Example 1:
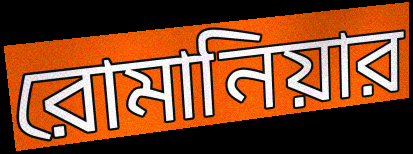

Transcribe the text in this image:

রোমানিয়ার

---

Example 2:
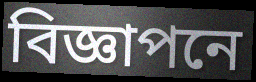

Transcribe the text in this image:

বিজ্ঞাপনে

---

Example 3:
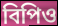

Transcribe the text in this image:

বিপিও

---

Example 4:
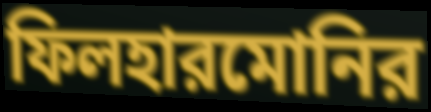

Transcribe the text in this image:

ফিলহারমোনির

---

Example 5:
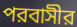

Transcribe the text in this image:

পরবাসীর